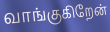
வாங்குகிறேன்